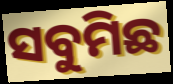
ସବୁମିଛ